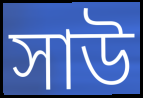
সাউ